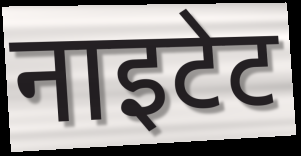
नाइटेट